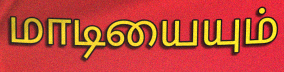
மாடியையும்